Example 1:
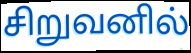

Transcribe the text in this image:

சிறுவனில்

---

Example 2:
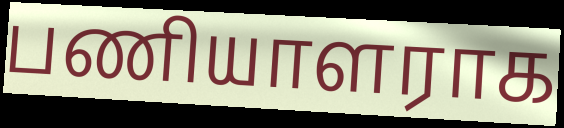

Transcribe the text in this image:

பணியாளராக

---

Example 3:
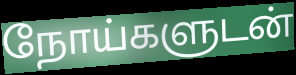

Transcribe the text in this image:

நோய்களுடன்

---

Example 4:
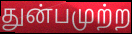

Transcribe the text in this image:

துன்பமுற்ற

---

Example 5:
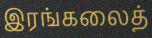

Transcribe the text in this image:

இரங்கலைத்